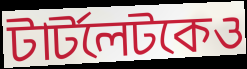
টার্টলেটকেও